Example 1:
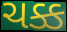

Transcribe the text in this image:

ચક્ક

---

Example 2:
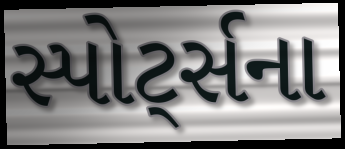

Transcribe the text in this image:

સ્પોર્ટ્સના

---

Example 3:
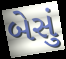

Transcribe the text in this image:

બેસું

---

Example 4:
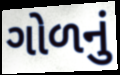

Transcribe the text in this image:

ગોળનું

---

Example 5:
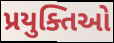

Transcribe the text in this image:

પ્રયુક્તિઓ